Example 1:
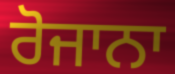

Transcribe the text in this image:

ਰੋਜਾਨਾ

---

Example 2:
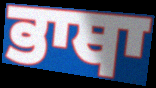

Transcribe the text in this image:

ਭਾਥਾ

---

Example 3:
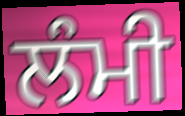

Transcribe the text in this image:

ਲੰਮੀ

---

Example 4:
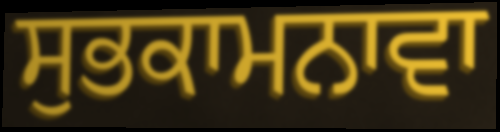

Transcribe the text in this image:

ਸੁਭਕਾਮਨਾਵਾ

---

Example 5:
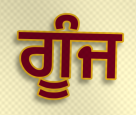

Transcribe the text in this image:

ਗੂੰਜ